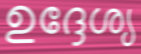
ഉദ്ദേശ്യ